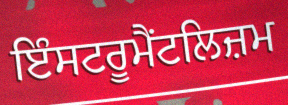
ਇੰਸਟਰੂਮੈਂਟਲਿਜ਼ਮ